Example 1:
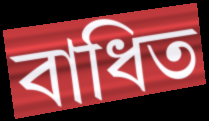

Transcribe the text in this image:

বাধিত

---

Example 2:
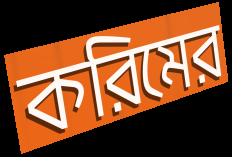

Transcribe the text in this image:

করিমের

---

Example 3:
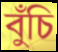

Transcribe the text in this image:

বুঁচি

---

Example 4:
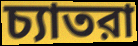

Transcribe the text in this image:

চ্যাতরা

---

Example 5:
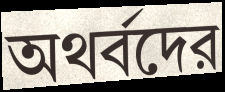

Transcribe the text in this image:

অথর্বদের